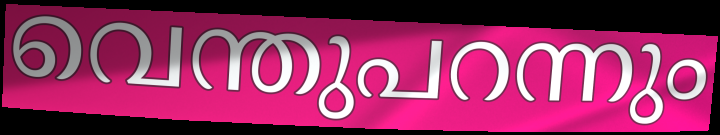
വെന്തുപറന്നും